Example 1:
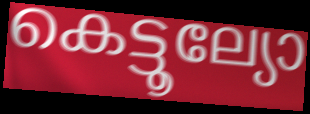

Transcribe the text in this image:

കെട്ടൂല്യോ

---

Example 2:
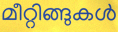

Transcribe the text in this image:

മീറ്റിങ്ങുകൾ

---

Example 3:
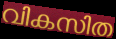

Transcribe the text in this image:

വികസിത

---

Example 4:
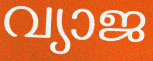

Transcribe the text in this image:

വ്യാജ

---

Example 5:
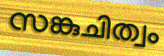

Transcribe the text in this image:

സങ്കുചിത്വം